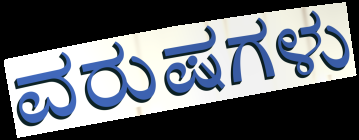
ವರುಷಗಳು